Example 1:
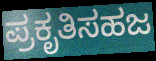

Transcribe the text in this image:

ಪ್ರಕೃತಿಸಹಜ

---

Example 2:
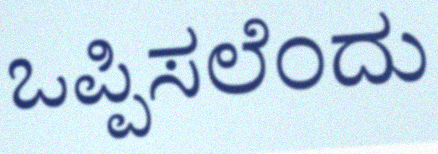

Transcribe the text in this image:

ಒಪ್ಪಿಸಲೆಂದು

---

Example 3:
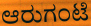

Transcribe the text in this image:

ಆರುಗಂಟೆ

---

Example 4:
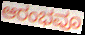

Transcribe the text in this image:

ಆರಂಭವೂ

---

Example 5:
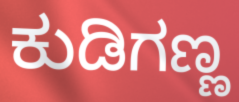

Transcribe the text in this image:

ಕುಡಿಗಣ್ಣ